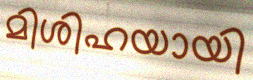
മിശിഹയായി